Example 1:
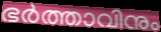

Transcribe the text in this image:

ഭർത്താവിനും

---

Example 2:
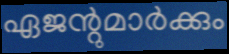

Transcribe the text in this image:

ഏജന്റുമാർക്കും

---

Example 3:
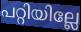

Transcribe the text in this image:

പറ്റിയില്ലേ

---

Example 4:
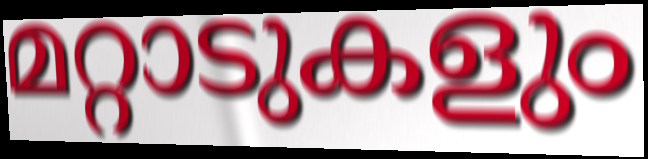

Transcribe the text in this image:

മറ്റാടുകളും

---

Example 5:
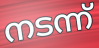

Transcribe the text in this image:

നടന്ന്